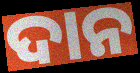
ଦାନ